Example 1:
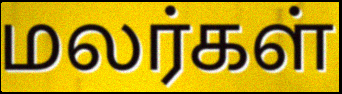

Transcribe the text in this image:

மலர்கள்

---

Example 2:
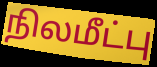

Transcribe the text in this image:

நிலமீட்பு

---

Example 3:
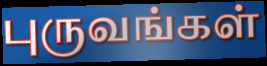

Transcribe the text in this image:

புருவங்கள்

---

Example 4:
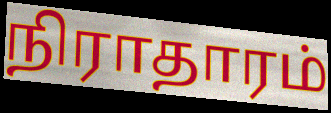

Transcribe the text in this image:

நிராதாரம்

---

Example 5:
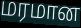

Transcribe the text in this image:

மரமான